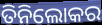
ତିନିଲୋକର